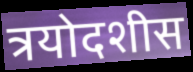
त्रयोदशीस